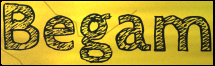
Begam